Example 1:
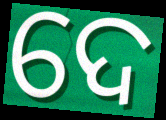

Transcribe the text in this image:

ଦେ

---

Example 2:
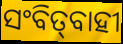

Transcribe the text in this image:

ସଂବିତ୍‌ବାହୀ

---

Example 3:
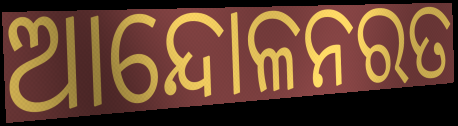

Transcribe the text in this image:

ଆନ୍ଦୋଳନରତ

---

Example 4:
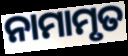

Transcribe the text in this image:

ନାମାମୃତ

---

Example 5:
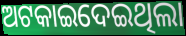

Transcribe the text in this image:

ଅଟକାଇଦେଇଥିଲା